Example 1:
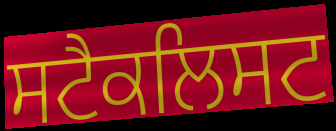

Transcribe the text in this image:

ਸਟੈਕਲਿਸਟ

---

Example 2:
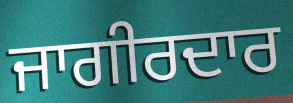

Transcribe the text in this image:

ਜਾਗੀਰਦਾਰ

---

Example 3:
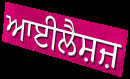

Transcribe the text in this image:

ਆਈਲੈਸ਼ਜ਼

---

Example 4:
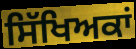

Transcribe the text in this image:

ਸਿੱਖਿਅਕਾਂ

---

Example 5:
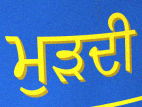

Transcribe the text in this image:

ਮੁੜਦੀ